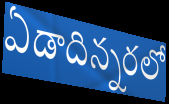
ఏడాదిన్నరలో